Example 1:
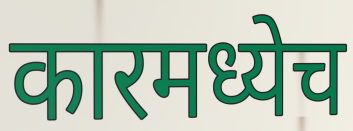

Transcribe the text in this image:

कारमध्येच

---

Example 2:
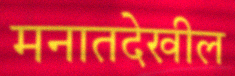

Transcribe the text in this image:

मनातदेखील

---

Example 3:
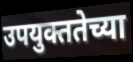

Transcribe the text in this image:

उपयुक्ततेच्या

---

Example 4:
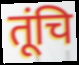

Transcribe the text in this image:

तूंचि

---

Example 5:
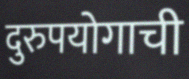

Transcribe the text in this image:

दुरुपयोगाची